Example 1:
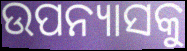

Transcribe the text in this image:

ଉପନ୍ୟାସକୁ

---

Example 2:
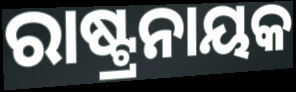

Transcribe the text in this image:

ରାଷ୍ଟ୍ରନାୟକ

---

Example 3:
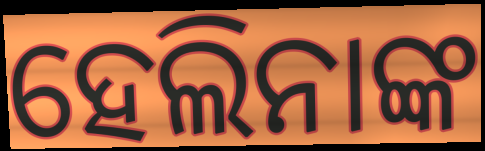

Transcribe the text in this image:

ହେଲିନାଙ୍କ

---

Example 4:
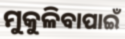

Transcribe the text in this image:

ମୁକୁଳିବାପାଇଁ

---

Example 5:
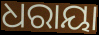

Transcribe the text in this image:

ଧରାୟା